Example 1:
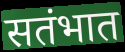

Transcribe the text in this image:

सतंभात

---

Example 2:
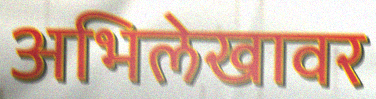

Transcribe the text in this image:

अभिलेखावर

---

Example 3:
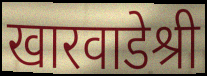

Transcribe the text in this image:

खारवाडेश्री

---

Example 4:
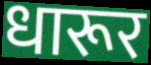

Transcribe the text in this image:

धारूर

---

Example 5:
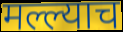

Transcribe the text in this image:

मल्ल्याच